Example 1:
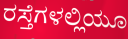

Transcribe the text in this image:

ರಸ್ತೆಗಳಲ್ಲಿಯೂ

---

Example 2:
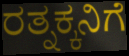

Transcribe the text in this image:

ರತ್ನಕ್ಕನಿಗೆ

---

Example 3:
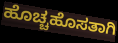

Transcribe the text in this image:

ಹೊಚ್ಚಹೊಸತಾಗಿ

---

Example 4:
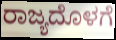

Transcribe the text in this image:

ರಾಜ್ಯದೊಳಗೆ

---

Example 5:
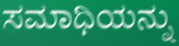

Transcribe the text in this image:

ಸಮಾಧಿಯನ್ನು